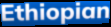
Ethiopian